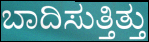
ಬಾದಿಸುತ್ತಿತ್ತು